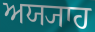
ਅਯ੍ਯਾਹ